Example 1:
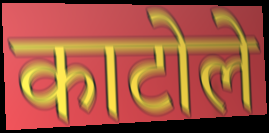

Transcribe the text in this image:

काटोले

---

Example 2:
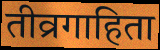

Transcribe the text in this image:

तीव्रगाहिता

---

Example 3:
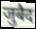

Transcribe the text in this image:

जुबैद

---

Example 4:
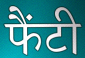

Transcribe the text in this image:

फैंटी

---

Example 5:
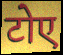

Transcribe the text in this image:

टोए